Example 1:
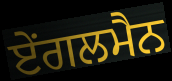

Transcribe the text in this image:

ਏਂਗਲਮੈਨ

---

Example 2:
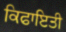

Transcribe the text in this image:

ਕਿਫਾਇਤੀ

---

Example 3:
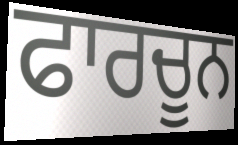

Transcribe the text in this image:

ਫਾਰਚੂਨ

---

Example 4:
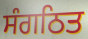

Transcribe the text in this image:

ਸੰਗਠਿਤ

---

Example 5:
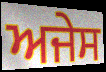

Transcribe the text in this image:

ਅਜੇਸ